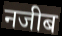
नजीब